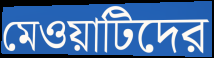
মেওয়াটিদের